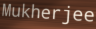
Mukherjee